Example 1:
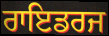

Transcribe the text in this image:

ਰਾਇਡਰਜ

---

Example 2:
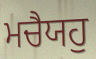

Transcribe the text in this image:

ਮਚੈਯਹੁ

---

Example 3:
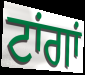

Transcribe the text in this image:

ਟਾਂਗਾਂ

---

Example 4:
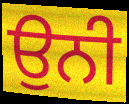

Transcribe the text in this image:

ਉਨੀ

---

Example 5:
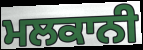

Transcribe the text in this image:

ਮਲਕਾਨੀ